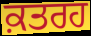
ਕ਼ਤਰਹ